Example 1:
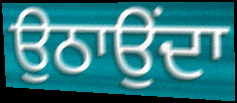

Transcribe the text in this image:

ਉਠਾਉਂਦਾ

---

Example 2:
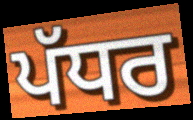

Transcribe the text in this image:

ਪੱਧਰ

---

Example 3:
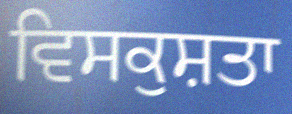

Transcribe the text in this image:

ਵਿਸਕੁਸ਼ਤਾ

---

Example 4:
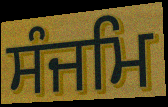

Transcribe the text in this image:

ਸੰਜਮਿ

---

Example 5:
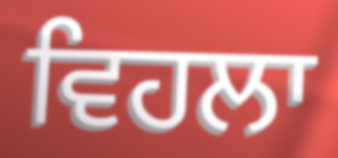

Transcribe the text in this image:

ਵਿਹਲਾ